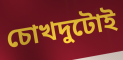
চোখদুটোই